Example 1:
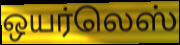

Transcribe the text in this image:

ஒயர்லெஸ்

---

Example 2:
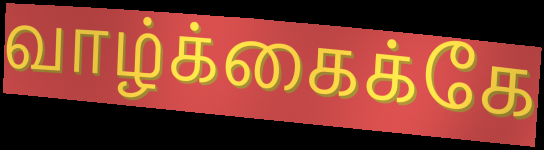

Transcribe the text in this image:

வாழ்க்கைக்கே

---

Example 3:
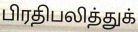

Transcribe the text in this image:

பிரதிபலித்துக்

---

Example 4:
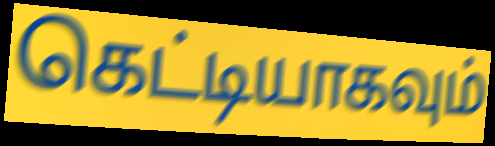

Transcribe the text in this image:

கெட்டியாகவும்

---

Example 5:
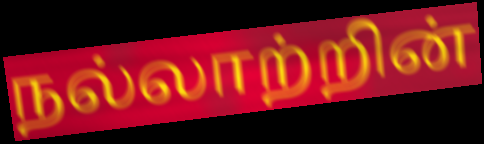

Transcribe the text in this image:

நல்லாற்றின்